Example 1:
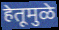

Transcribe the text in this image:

हेतूमुळे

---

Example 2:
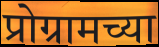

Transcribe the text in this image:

प्रोग्रामच्या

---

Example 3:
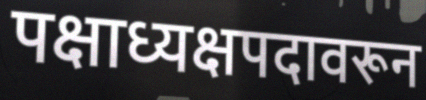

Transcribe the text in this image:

पक्षाध्यक्षपदावरून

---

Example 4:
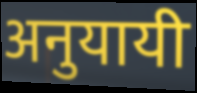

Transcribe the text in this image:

अनुयायी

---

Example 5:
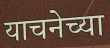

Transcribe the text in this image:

याचनेच्या